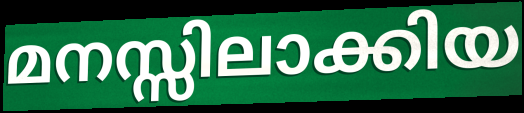
മനസ്സിലാക്കിയ